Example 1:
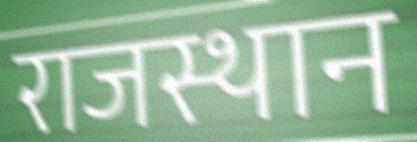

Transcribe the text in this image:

राजस्थान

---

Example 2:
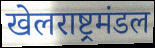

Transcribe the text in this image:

खेलराष्ट्रमंडल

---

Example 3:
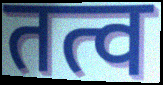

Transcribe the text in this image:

तत्व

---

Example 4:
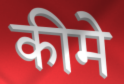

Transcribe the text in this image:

कीमे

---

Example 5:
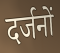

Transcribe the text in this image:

दर्जनों